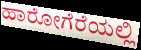
ಹಾರೋಗೆರೆಯಲ್ಲಿ